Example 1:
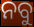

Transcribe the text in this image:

ନବୁ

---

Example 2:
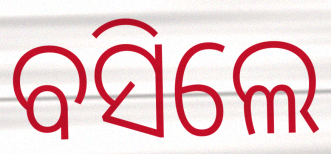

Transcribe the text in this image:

ବସିଲେ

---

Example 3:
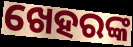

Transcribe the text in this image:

ଖେହରଙ୍କ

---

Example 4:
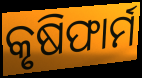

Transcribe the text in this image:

କୃଷିଫାର୍ମ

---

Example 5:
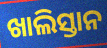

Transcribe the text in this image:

ଖାଲିସ୍ତାନ